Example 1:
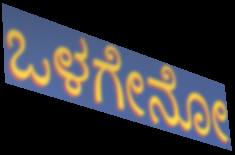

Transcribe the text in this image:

ಒಳಗೇನೋ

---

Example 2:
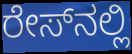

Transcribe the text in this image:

ರೇಸ್‍ನಲ್ಲಿ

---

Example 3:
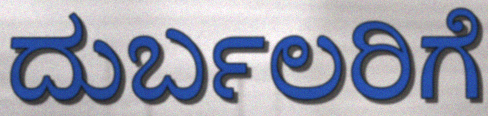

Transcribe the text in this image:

ದುರ್ಬಲರಿಗೆ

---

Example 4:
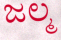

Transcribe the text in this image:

ಜಲ್ಮ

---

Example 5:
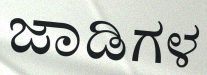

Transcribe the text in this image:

ಜಾಡಿಗಳ